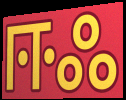
ஈஃ